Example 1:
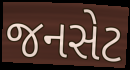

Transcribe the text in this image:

જનસેટ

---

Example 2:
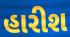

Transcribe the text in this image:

હારીશ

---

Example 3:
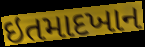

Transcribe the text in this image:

ઇતમાદખાન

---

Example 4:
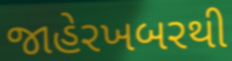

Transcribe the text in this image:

જાહેરખબરથી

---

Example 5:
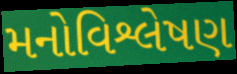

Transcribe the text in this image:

મનોવિશ્લેષણ